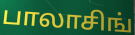
பாலாசிங்